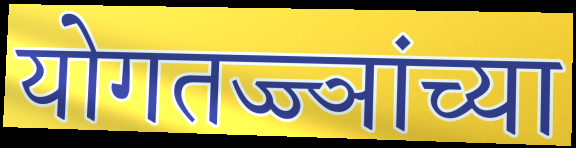
योगतज्ज्ञांच्या